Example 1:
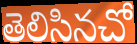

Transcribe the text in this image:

తెలిసినచో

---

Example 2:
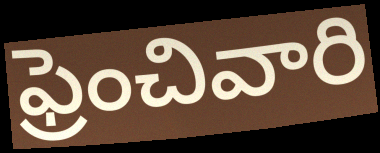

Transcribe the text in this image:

ఫ్రెంచివారి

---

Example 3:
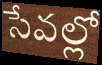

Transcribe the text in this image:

సేవల్లో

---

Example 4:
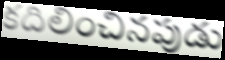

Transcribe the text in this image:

కదిలించినపుడు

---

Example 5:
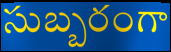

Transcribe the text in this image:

సుబ్బరంగా